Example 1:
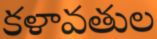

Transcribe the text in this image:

కళావతుల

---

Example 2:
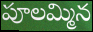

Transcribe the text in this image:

పూలమ్మిన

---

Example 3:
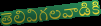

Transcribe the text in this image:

తెలివిగలవాడికి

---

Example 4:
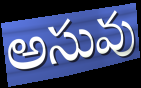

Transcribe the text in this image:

అసువు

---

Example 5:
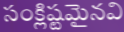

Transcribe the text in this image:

సంక్లిష్టమైనవి